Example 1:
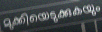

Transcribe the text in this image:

മുക്കിയെടുക്കുകയും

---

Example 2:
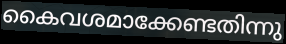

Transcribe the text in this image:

കൈവശമാക്കേണ്ടതിന്നു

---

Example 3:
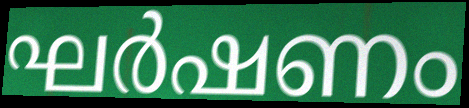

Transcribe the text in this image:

ഘർഷണം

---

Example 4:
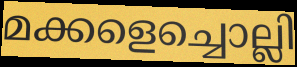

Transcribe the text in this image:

മക്കളെച്ചൊല്ലി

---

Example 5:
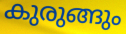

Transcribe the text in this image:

കുരുങ്ങും